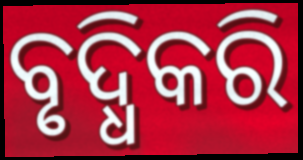
ବୃଦ୍ଧିକରି